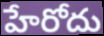
హేరోదు